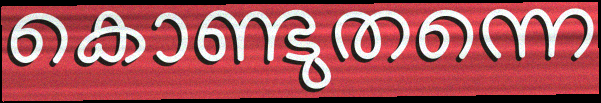
കൊണ്ടുതന്നെ